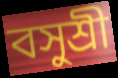
বসুশ্রী